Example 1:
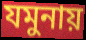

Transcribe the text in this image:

যমুনায়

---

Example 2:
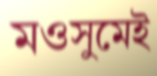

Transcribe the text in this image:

মওসুমেই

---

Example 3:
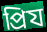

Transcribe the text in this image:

প্রিয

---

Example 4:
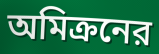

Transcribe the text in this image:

অমিক্রনের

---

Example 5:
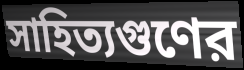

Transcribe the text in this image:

সাহিত্যগুণের